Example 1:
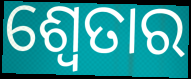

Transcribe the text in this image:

ଶ୍ଵେତାର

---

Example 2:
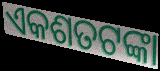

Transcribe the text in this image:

ଏକଶତଟଙ୍କା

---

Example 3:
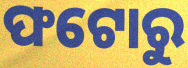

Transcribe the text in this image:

ଫଟୋରୁ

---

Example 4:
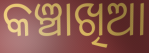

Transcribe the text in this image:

କଞ୍ଚାଖିଆ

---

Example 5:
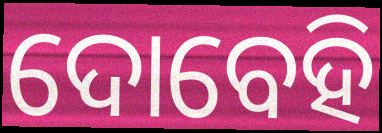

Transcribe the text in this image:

ଦୋବେହି